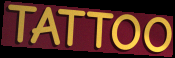
TATTOO